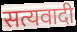
सत्यवादी